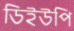
ডিইউপি